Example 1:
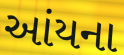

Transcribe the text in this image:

આંયના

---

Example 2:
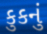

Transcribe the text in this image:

કુકનું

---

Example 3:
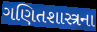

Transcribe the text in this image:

ગણિતશાસ્ત્રના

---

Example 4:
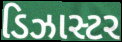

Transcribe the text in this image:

ડિઝાસ્ટર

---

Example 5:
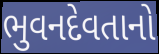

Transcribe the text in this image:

ભુવનદેવતાનો